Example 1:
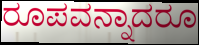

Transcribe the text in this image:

ರೂಪವನ್ನಾದರೂ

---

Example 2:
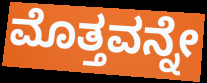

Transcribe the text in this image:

ಮೊತ್ತವನ್ನೇ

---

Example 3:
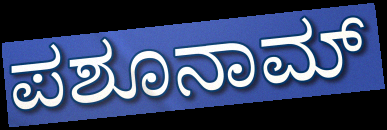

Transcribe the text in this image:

ಪಶೂನಾಮ್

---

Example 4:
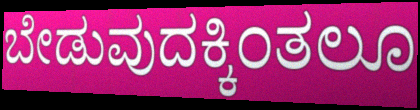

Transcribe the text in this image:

ಬೇಡುವುದಕ್ಕಿಂತಲೂ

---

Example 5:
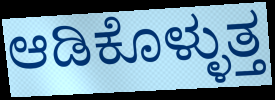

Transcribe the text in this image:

ಆಡಿಕೊಳ್ಳುತ್ತ